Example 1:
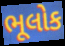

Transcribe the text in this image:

ભૂલોક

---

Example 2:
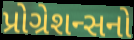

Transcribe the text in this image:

પ્રોગ્રેશન્સનો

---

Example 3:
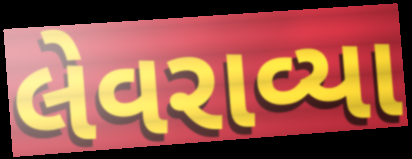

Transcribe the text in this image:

લેવરાવ્યા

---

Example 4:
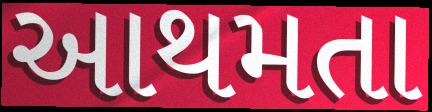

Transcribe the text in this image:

આથમતા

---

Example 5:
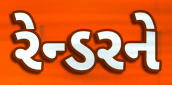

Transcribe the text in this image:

રેન્ડરને